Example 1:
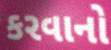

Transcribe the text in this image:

કરવાનો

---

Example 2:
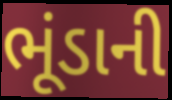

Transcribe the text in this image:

ભૂંડાની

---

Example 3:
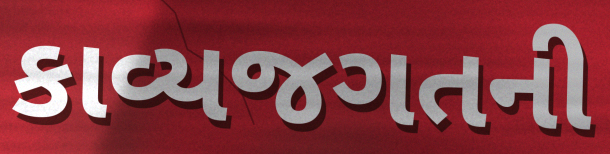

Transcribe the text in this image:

કાવ્યજગતની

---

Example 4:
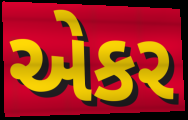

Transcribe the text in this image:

એકર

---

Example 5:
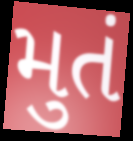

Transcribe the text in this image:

મુતં